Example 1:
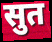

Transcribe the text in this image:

सुत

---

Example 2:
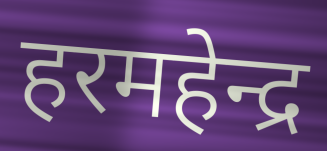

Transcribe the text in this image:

हरमहेन्द्र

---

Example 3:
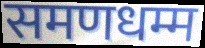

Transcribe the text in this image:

समणधम्म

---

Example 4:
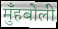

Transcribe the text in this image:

मुँहबोली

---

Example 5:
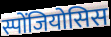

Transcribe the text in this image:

स्पोंजियोसिस